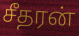
சீதரன்